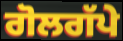
ਗੋਲਗੱਪੇ